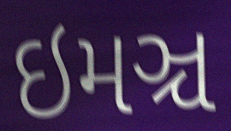
ઇમઞ્ચ